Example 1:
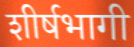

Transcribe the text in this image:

शीर्षभागी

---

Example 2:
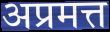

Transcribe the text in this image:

अप्रमत्त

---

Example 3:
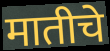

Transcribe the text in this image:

मातीचे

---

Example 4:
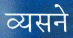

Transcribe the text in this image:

व्यसने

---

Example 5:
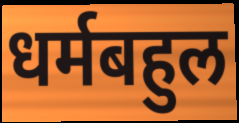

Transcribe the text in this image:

धर्मबहुल